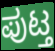
ಪುಟ್ತ